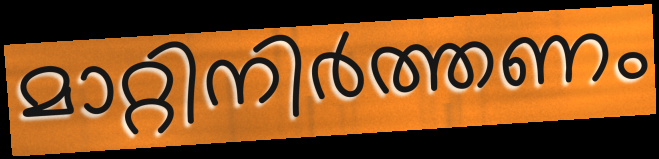
മാറ്റിനിർത്തണം